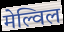
मेल्विल